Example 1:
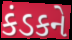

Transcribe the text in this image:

કંડકને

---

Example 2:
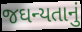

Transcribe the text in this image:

જઘન્યતાનું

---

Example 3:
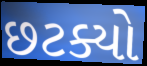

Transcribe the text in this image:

છટક્યો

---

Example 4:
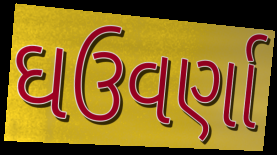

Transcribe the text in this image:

ઘઉવર્ણા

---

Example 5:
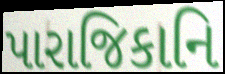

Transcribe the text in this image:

પારાજિકાનિ